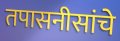
तपासनीसांचे